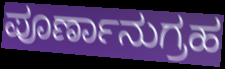
ಪೂರ್ಣಾನುಗ್ರಹ